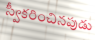
స్వీకరించినపుడు